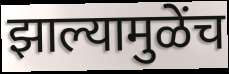
झाल्यामुळेंच